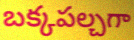
బక్కపల్చగా